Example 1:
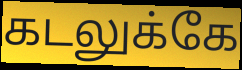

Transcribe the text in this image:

கடலுக்கே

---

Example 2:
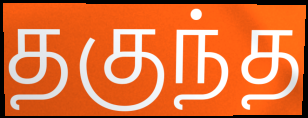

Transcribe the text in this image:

தகுந்த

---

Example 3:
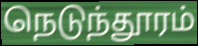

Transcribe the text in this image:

நெடுந்தூரம்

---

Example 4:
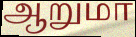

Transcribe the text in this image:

ஆறுமா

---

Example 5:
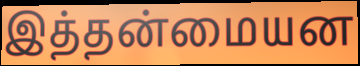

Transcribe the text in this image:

இத்தன்மையன